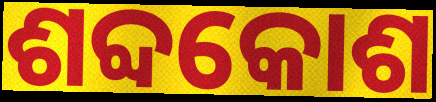
ଶବ୍ଦକୋଶ